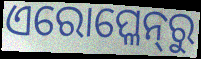
ଏରୋପ୍ଳେନ୍‍ରୁ